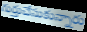
గుర్తుచేసుకున్నారు